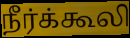
நீர்க்கூலி